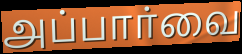
அப்பார்வை